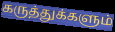
கருத்துக்களும்